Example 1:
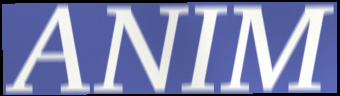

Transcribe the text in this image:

ANIM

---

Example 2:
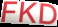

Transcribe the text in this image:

FKD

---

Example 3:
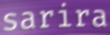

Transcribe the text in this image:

sarira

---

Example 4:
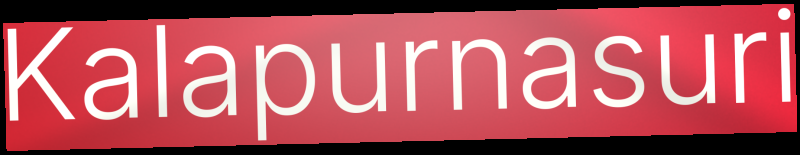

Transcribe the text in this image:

Kalapurnasuri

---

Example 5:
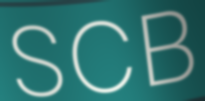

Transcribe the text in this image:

SCB